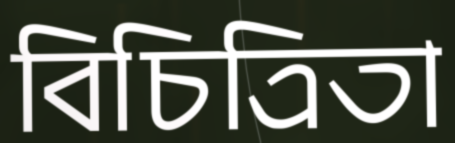
বিচিত্রিতা